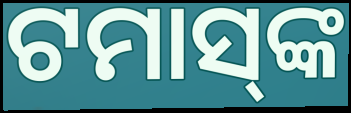
ଟମାସ୍‌ଙ୍କ